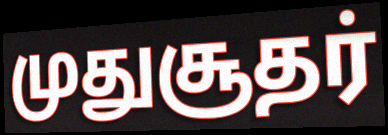
முதுசூதர்